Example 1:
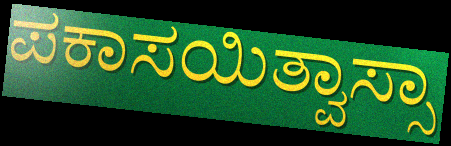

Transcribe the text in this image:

ಪಕಾಸಯಿತ್ವಾಸ್ಸಾ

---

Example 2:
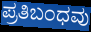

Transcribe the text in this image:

ಪ್ರತಿಬಂಧವು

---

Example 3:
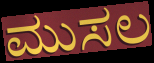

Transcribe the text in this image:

ಮುಸಲ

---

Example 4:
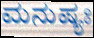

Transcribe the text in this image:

ಮನುಷ್ಯಃ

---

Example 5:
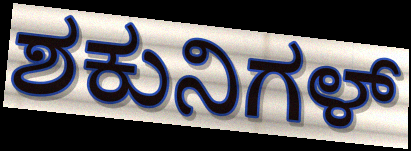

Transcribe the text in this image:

ಶಕುನಿಗಳ್